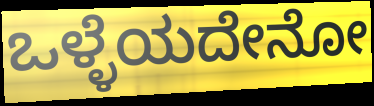
ಒಳ್ಳೆಯದೇನೋ